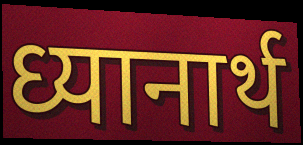
ध्यानार्थ